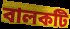
বালকটি